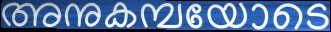
അനുകമ്പയോടെ